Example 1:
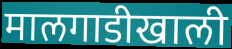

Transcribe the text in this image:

मालगाडीखाली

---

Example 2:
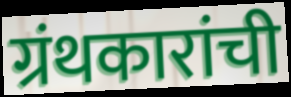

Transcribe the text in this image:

ग्रंथकारांची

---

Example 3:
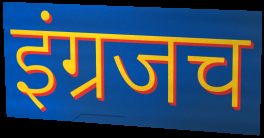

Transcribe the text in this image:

इंग्रजच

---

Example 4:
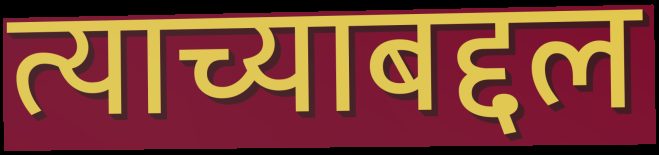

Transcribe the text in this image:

त्याच्याबद्दल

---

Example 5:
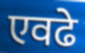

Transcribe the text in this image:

एवढे